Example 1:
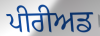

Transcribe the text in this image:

ਪੀਰੀਅਡ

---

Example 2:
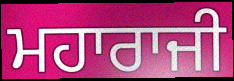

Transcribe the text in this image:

ਮਹਾਰਾਜੀ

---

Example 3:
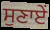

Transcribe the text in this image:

ਸੁਣਾਏਂ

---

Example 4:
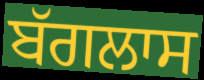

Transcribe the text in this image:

ਬੱਗਲਾਸ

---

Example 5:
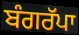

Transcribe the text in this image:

ਬੰਗਰੱਪਾ